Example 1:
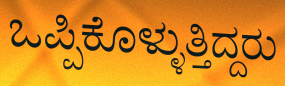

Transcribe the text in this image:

ಒಪ್ಪಿಕೊಳ್ಳುತ್ತಿದ್ದರು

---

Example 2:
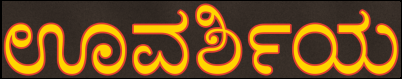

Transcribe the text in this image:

ಊವರ್ಶಿಯ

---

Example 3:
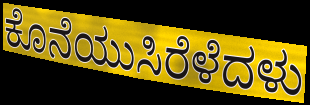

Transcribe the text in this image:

ಕೊನೆಯುಸಿರೆಳೆದಳು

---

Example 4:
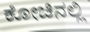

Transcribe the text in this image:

ಕೋಚಿನಲ್ಲಿ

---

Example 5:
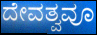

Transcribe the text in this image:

ದೇವತ್ವವೂ